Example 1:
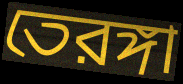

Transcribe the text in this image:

তেরঙ্গা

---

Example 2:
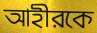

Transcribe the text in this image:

আহীরকে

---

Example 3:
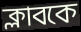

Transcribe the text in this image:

ক্লাবকে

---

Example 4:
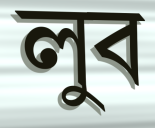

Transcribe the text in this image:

লুব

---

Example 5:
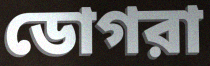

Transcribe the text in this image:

ডোগরা